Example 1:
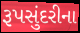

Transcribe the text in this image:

રૂપસુંદરીના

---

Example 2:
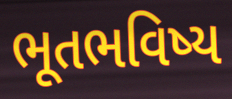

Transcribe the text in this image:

ભૂતભવિષ્ય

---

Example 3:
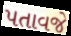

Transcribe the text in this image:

પતાવજે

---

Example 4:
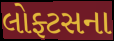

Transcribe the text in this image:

લોફ્ટસના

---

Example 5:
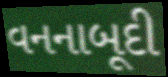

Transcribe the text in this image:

વનનાબૂદી